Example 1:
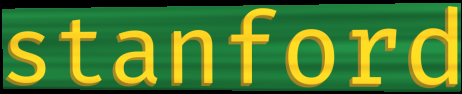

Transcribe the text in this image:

stanford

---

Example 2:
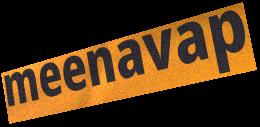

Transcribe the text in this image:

meenavap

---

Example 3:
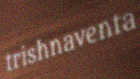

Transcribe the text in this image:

trishnaventa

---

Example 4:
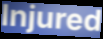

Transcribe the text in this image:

Injured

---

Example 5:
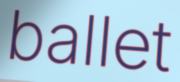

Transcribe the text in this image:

ballet